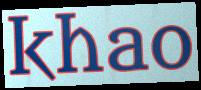
khao